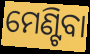
ମେଣ୍ଟିବା